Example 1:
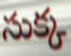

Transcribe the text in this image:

సుక్క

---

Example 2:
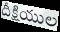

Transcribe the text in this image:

దీక్షియుల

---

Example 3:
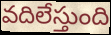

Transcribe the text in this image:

వదిలేస్తుంది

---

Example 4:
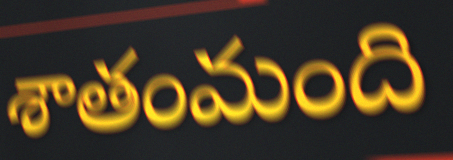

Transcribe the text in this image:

శాతంమంది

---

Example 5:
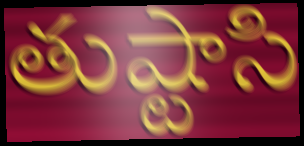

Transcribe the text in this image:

తుష్టాసి